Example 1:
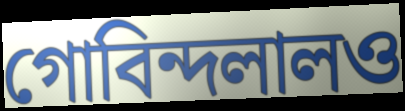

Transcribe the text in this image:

গোবিন্দলালও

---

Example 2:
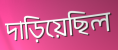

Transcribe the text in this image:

দাড়িয়েছিল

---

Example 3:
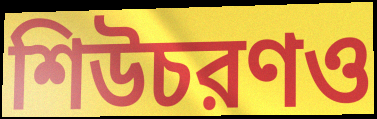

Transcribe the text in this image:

শিউচরণও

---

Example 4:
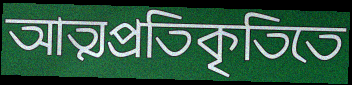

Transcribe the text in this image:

আত্মপ্রতিকৃতিতে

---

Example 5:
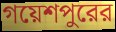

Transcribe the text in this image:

গয়েশপুরের